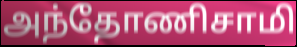
அந்தோணிசாமி